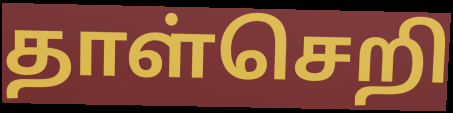
தாள்செறி